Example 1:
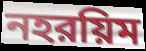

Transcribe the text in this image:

নহরয়িম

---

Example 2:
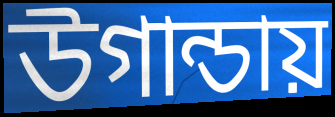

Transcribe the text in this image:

উগান্ডায়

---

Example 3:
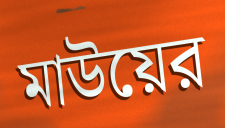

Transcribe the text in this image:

মাউয়ের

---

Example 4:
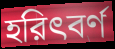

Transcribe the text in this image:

হরিৎবর্ণ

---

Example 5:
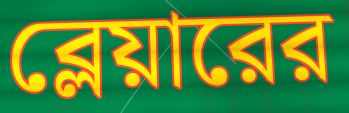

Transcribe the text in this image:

ব্লেয়ারের